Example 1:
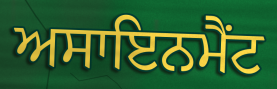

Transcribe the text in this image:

ਅਸਾਇਨਮੈਂਟ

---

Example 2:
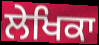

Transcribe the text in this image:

ਲੇਖਿਕਾ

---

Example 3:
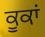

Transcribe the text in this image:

ਕੂਕਾਂ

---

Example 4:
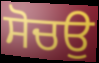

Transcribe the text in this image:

ਸੋਚਉ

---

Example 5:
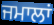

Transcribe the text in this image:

ਜਮਾਲਾਂ